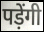
पड़ेंगी